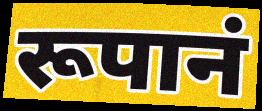
रूपानं